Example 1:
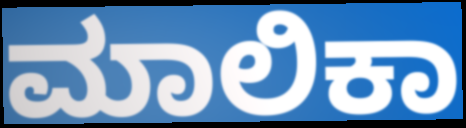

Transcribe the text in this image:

ಮಾಲಿಕಾ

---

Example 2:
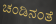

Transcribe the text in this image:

ಚಂಡಿನಂತೆ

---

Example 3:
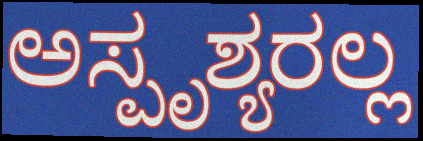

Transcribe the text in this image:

ಅಸ್ಪೃಶ್ಯರಲ್ಲ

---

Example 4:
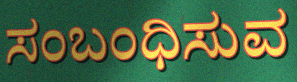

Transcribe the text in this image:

ಸಂಬಂಧಿಸುವ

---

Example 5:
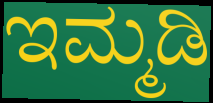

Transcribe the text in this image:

ಇಮ್ಮಡಿ